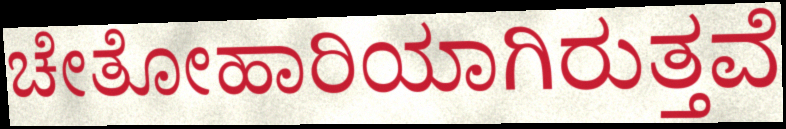
ಚೇತೋಹಾರಿಯಾಗಿರುತ್ತವೆ